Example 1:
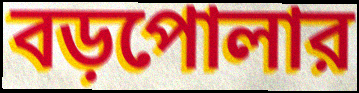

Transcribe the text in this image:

বড়পোলার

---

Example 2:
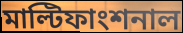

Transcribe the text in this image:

মাল্টিফাংশনাল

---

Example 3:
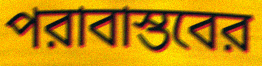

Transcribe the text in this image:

পরাবাস্তবের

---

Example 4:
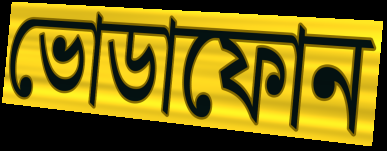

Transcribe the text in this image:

ভোডাফোন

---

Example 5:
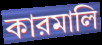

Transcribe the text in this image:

কারমালি